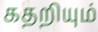
கதறியும்